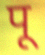
पू